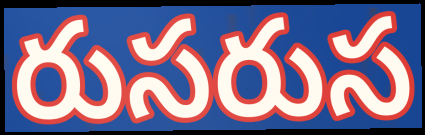
రుసరుస